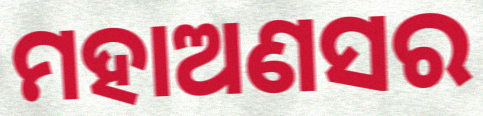
ମହାଅଣସର